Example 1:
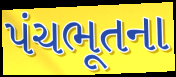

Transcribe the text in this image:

પંચભૂતના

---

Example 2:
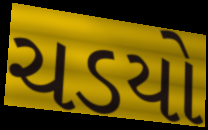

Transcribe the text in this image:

ચડયો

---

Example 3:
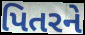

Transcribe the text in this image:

પિતરને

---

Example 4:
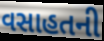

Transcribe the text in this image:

વસાહતની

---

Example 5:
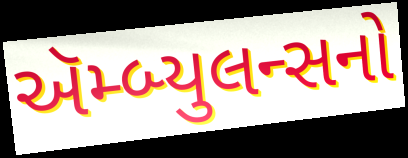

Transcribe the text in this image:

ઍમ્બ્યુલન્સનો